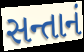
સન્તાનં